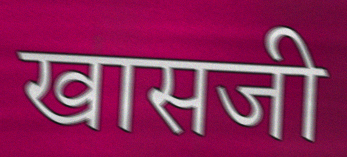
खासजी